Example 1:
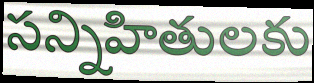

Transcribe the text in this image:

సన్నిహితులకు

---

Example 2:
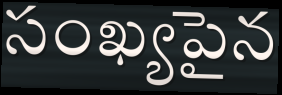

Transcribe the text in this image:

సంఖ్యపైన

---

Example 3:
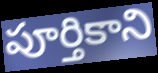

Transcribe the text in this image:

పూర్తికాని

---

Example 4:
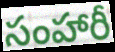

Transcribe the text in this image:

సంహారీ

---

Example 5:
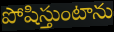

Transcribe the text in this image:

పోషిస్తుంటాను